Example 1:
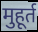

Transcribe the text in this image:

मुहूर्त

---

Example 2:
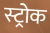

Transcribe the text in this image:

स्‍ट्रोक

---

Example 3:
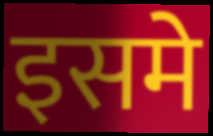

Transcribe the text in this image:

इसमे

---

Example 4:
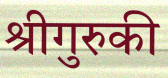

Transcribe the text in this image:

श्रीगुरुकी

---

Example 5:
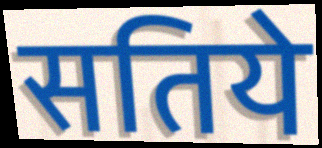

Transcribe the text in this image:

सतिये